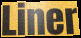
Liner